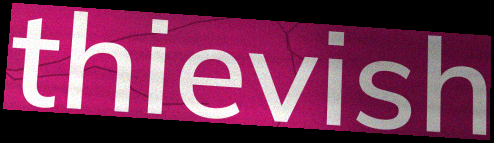
thievish